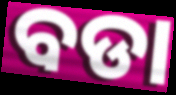
ବଡା